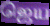
ஜெய